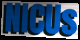
NICUs